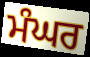
ਮੰਘਰ